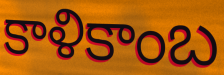
కాళికాంబ